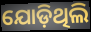
ଯୋଡ଼ିଥିଲି